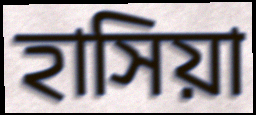
হাসিয়া